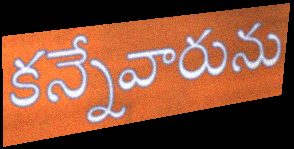
కన్నేవారును